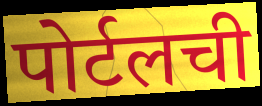
पोर्टलची